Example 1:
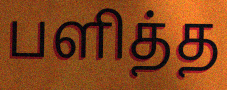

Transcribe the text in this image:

பளித்த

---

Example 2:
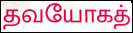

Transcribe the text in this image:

தவயோகத்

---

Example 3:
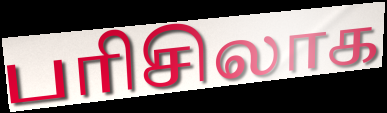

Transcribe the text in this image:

பரிசிலாக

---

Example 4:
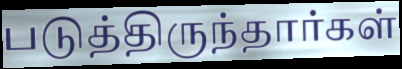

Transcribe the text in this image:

படுத்திருந்தார்கள்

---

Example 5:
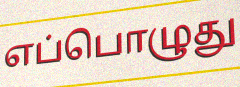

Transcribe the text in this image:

எப்பொழுது